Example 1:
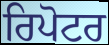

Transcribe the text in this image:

ਰਿਪੋਟਰ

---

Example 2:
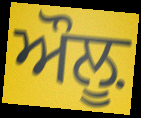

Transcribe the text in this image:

ਔਲ਼ੂ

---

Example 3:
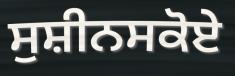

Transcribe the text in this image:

ਸੁਸ਼ੀਨਸਕੋਏ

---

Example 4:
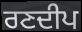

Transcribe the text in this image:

ਰਣਦੀਪ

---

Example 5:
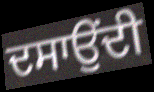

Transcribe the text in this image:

ਦਸਾਉਂਦੀ